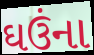
ઘઉંના